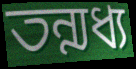
তন্মধ্য